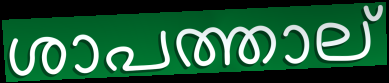
ശാപത്താല്